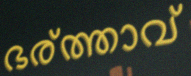
ഭര്ത്താവ്